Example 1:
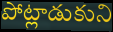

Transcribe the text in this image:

పోట్లాడుకుని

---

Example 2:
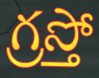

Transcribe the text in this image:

గ్రస్తో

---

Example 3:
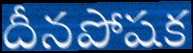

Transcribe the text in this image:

దీనపోషక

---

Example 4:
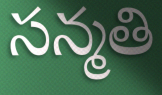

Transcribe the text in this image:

సన్మతి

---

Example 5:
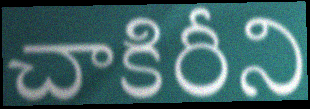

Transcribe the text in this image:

చాకిరీని